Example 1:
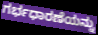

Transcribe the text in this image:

ಗರ್ಭಧಾರಣೆಯನ್ನು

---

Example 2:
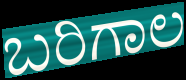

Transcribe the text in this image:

ಬರಿಗಾಲ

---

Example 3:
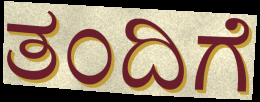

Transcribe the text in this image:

ತಂದಿಗೆ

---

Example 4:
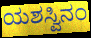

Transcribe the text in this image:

ಯಶಸ್ವಿನಂ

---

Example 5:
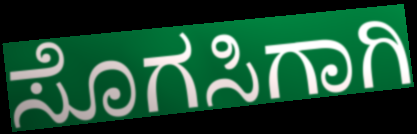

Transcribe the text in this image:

ಸೊಗಸಿಗಾಗಿ